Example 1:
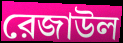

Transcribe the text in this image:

রেজাউল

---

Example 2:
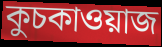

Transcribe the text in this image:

কুচকাওয়াজ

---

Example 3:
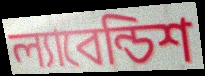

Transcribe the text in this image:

ল্যাবেন্ডিশ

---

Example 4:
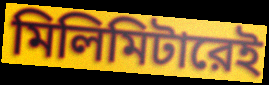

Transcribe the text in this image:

মিলিমিটারেই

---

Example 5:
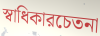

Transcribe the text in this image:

স্বাধিকারচেতনা